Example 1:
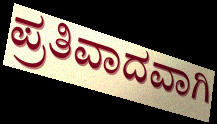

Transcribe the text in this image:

ಪ್ರತಿವಾದವಾಗಿ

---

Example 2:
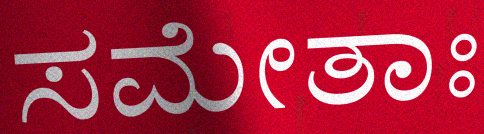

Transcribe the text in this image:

ಸಮೇತಾಃ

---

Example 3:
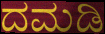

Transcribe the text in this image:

ದಮಡಿ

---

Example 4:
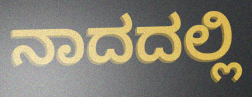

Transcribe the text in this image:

ನಾದದಲ್ಲಿ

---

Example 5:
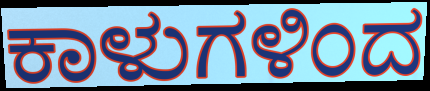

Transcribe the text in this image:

ಕಾಳುಗಳಿಂದ